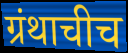
ग्रंथाचीच